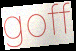
goff